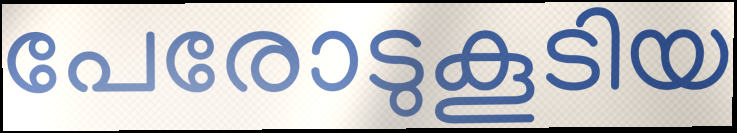
പേരോടുകൂടിയ